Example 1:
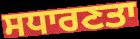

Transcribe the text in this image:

ਸਧਾਰਣਤਾ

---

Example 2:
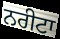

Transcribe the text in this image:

ਨਰੀਟਾ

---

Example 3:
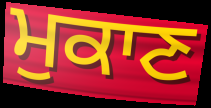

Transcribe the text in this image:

ਮੁਕਾਣ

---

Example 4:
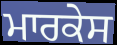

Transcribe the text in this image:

ਮਾਰਕੇਸ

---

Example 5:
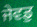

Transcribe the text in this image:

ਜੇਵਡੁ